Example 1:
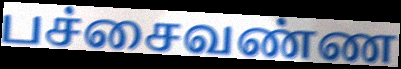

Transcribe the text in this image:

பச்சைவண்ண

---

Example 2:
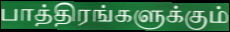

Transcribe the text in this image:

பாத்திரங்களுக்கும்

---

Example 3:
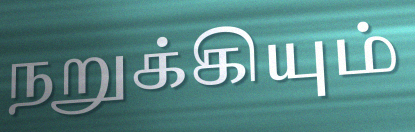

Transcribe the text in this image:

நறுக்கியும்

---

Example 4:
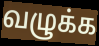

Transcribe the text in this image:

வழுக்க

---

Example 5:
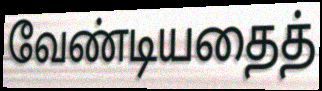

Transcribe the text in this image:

வேண்டியதைத்